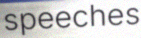
speeches